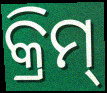
କ୍ରିମ୍